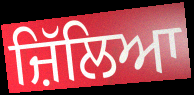
ਜ਼ਿੱਲਿਆ